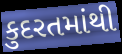
કુદરતમાંથી